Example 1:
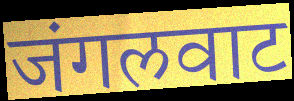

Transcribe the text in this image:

जंगलवाट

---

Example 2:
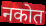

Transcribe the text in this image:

नकोत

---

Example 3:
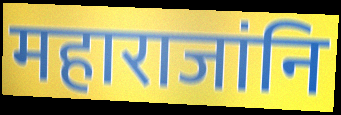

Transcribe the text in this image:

महाराजांनि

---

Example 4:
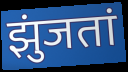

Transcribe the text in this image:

झुंजतां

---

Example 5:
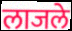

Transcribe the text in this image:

लाजले